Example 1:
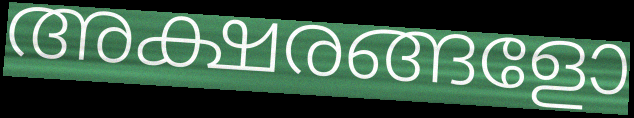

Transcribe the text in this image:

അക്ഷരങ്ങളോ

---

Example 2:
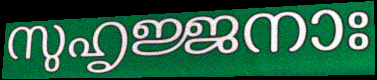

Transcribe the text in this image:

സുഹൃജ്ജനാഃ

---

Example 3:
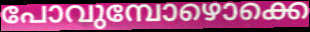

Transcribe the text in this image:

പോവുമ്പോഴൊക്കെ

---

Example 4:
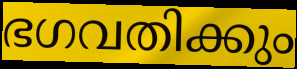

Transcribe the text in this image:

ഭഗവതിക്കും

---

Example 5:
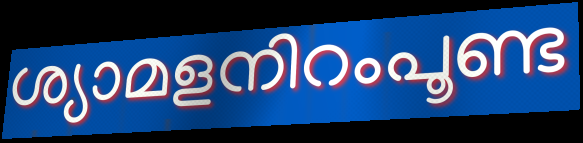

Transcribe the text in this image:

ശ്യാമളനിറംപൂണ്ട